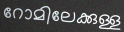
റോമിലേക്കുള്ള